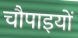
चौपाइयों